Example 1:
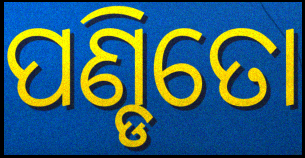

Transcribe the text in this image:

ପଣ୍ଡିତୋ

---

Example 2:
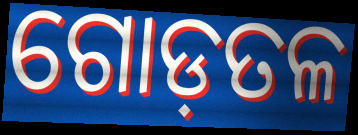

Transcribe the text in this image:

ଗୋଡ଼ତଳ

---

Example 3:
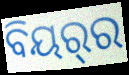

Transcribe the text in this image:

ବିୟର୍‌ର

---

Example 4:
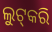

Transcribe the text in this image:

ଲୁଟ୍‌କରି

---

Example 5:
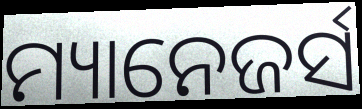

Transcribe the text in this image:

ମ୍ୟାନେଜର୍ସ